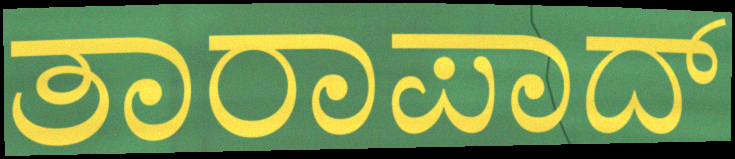
ತಾರಾಪಾದ್